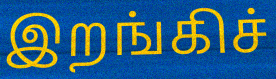
இறங்கிச்